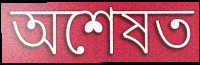
অশেষত